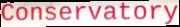
Conservatory